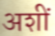
अशीं